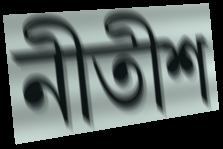
নীতীশ